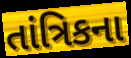
તાંત્રિકના